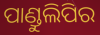
ପାଣ୍ଡୁଲିପିର